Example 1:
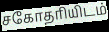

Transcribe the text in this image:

சகோதரியிடம்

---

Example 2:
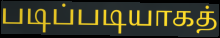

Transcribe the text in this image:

படிப்படியாகத்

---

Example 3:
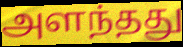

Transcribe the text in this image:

அளந்தது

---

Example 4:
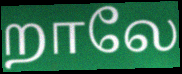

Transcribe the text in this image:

றாலே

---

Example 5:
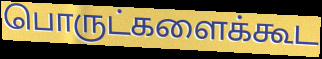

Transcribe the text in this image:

பொருட்களைக்கூட